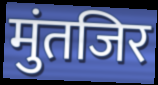
मुंतजिर